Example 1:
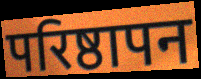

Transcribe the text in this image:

परिष्ठापन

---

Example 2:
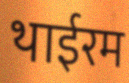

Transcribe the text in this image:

थाईरम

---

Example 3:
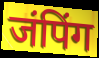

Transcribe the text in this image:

जंपिंग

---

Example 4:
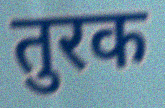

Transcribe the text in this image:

तुरक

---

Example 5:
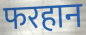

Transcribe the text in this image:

फरहान